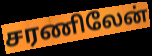
சரணிலேன்